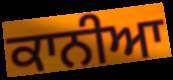
ਕਾਨੀਆ